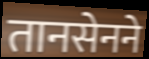
तानसेनने